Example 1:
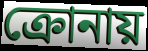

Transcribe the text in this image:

ক্রোনায়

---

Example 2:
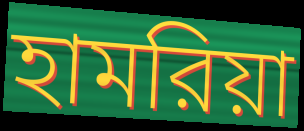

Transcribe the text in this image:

হামরিয়া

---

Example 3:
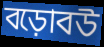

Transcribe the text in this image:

বড়োবউ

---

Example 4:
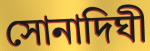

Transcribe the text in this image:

সোনাদিঘী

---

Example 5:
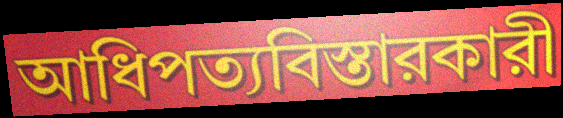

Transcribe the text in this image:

আধিপত্যবিস্তারকারী